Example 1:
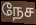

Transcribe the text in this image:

நேச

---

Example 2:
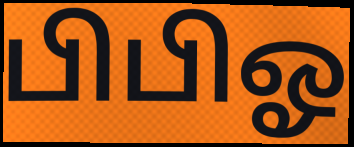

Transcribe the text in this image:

பிபிஓ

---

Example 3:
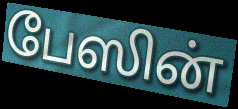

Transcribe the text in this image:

பேஸின்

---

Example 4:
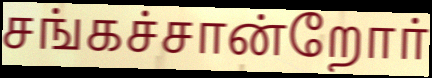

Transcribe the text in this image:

சங்கச்சான்றோர்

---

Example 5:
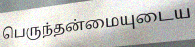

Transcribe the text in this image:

பெருந்தன்மையுடைய